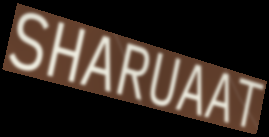
SHARUAAT